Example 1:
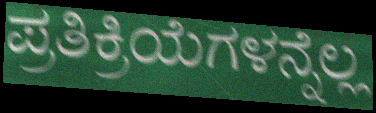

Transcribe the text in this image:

ಪ್ರತಿಕ್ರಿಯೆಗಳನ್ನೆಲ್ಲ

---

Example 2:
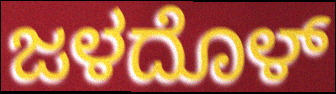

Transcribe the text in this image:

ಜಳದೊಳ್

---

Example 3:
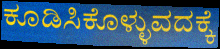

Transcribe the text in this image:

ಕೂಡಿಸಿಕೊಳ್ಳುವದಕ್ಕೆ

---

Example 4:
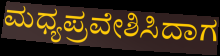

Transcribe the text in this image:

ಮಧ್ಯಪ್ರವೇಶಿಸಿದಾಗ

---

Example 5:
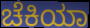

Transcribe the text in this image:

ಚೆಕಿಯಾ